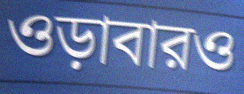
ওড়াবারও